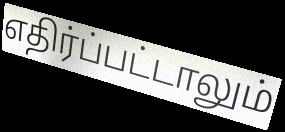
எதிர்ப்பட்டாலும்